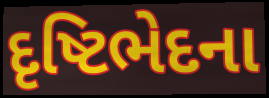
દૃષ્ટિભેદના